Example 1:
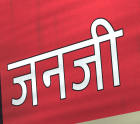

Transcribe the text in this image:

जनजी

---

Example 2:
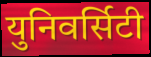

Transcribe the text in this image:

युनिवर्सिटी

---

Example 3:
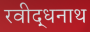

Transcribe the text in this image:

रवीद्धनाथ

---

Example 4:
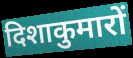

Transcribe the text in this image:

दिशाकुमारों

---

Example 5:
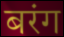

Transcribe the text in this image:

बरंग